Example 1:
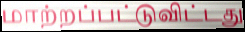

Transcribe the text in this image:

மாற்றப்பட்டுவிட்டது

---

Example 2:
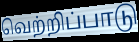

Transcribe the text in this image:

வெற்றிப்பாடு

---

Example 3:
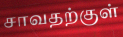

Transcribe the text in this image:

சாவதற்குள்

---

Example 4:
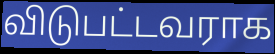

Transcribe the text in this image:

விடுபட்டவராக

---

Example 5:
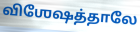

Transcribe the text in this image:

விஶேஷத்தாலே